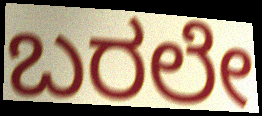
ಬರಲೇ